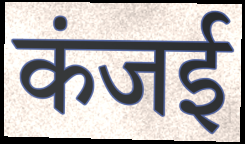
कंजई